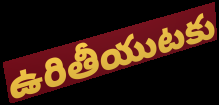
ఉరితీయుటకు